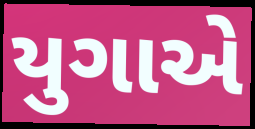
યુગાએ